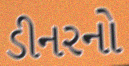
ડીનરનો